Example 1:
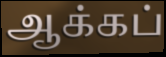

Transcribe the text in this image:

ஆக்கப்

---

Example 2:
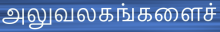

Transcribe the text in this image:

அலுவலகங்களைச்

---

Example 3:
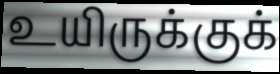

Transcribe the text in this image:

உயிருக்குக்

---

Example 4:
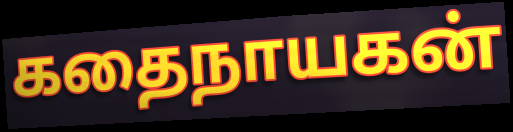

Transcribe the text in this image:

கதைநாயகன்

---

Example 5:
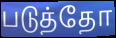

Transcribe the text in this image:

படுத்தோ